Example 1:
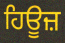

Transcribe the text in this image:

ਹਿਊਜ਼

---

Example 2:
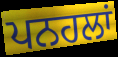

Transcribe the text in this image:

ਪਨਹਲਾਂ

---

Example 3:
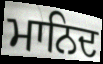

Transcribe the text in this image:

ਮਾਨਿਦ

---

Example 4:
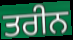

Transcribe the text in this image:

ਤਰੀਨ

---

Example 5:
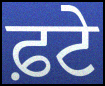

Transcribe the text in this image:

ਫ਼ਟੇ